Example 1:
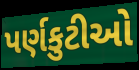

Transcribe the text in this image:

પર્ણકુટીઓ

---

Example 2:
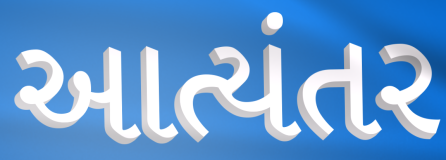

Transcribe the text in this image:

આત્યંતર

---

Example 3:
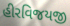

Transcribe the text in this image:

હીરવિજયજી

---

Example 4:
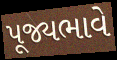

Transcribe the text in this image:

પૂજ્યભાવે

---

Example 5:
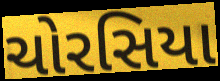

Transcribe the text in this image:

ચોરસિયા